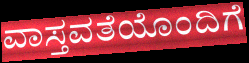
ವಾಸ್ತವತೆಯೊಂದಿಗೆ